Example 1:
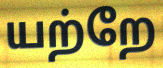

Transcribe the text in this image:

யற்றே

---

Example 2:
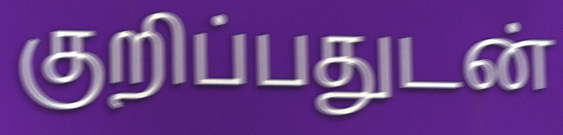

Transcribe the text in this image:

குறிப்பதுடன்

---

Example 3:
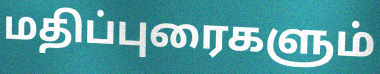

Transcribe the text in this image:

மதிப்புரைகளும்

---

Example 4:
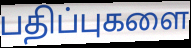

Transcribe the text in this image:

பதிப்புகளை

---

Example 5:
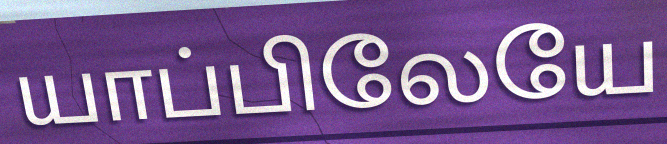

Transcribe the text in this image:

யாப்பிலேயே